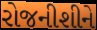
રોજનીશીને